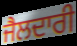
ਜੈਲਦਾਰੀ